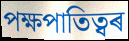
পক্ষপাতিত্বৰ